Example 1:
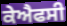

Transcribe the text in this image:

ਕੇਐਫਸੀ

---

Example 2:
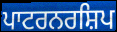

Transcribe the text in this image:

ਪਾਟਰਨਰਸ਼ਿਪ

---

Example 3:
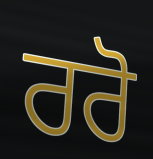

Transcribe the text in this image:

ਰਰੋ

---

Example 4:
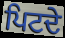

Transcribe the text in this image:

ਪਿਟਦੇ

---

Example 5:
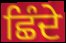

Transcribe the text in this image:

ਛਿੰਦੇ